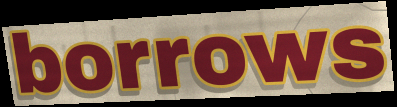
borrows